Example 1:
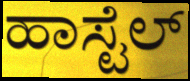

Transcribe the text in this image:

ಹಾಸ್ಟೆಲ್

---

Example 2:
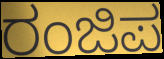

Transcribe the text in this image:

ರಂಜಿಪ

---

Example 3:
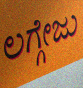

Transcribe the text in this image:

ಲಗ್ಗೇಜು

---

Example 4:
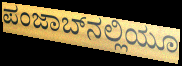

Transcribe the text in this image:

ಪಂಜಾಬ್‌ನಲ್ಲಿಯೂ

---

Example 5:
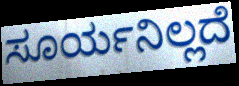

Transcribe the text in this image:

ಸೂರ್ಯನಿಲ್ಲದೆ